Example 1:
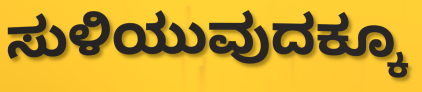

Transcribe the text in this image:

ಸುಳಿಯುವುದಕ್ಕೂ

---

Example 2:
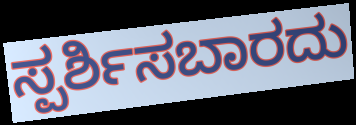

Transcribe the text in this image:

ಸ್ಪರ್ಶಿಸಬಾರದು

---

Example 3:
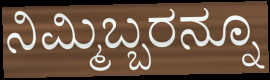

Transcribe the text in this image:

ನಿಮ್ಮಿಬ್ಬರನ್ನೂ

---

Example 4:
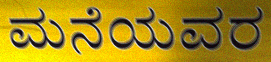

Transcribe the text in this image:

ಮನೆಯವರ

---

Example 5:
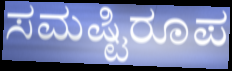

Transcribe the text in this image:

ಸಮಷ್ಟಿರೂಪ